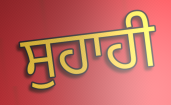
ਸੁਹਾਹੀ